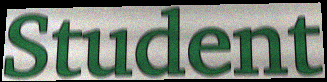
Student